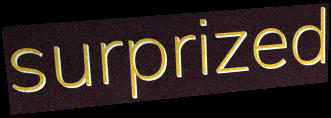
surprized